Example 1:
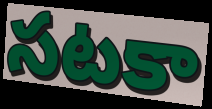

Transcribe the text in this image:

సటకా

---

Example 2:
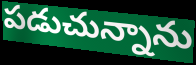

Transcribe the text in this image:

పడుచున్నాను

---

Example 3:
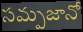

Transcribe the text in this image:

సమ్పజానో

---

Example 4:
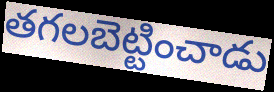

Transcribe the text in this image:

తగలబెట్టించాడు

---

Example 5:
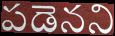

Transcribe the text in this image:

పడెనని